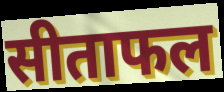
सीताफल